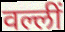
वल्लीं